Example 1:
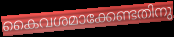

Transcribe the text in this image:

കൈവശമാക്കേണ്ടതിനു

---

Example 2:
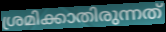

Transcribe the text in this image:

ശ്രമിക്കാതിരുന്നത്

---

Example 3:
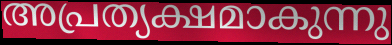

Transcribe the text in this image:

അപ്രത്യക്ഷമാകുന്നു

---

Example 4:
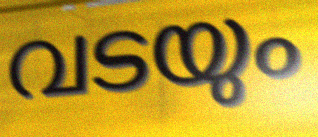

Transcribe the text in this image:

വടയും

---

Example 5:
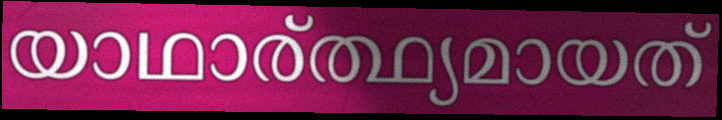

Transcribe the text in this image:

യാഥാര്ത്ഥ്യമായത്